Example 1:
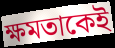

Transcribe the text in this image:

ক্ষমতাকেই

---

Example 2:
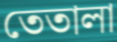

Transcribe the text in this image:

তেতালা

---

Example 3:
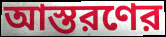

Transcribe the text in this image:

আস্তরণের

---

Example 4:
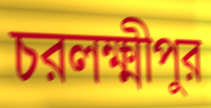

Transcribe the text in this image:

চরলক্ষ্মীপুর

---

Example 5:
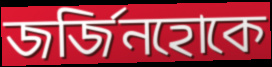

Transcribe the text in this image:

জর্জিনহোকে